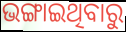
ଭଙ୍ଗାଇଥିବାରୁ